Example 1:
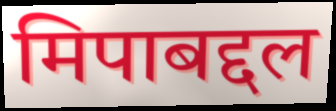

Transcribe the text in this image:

मिपाबद्दल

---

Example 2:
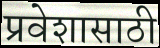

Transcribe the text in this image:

प्रवेशासाठी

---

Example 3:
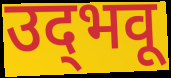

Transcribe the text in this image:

उद्‌भवू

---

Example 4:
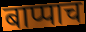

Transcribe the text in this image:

बाप्पाच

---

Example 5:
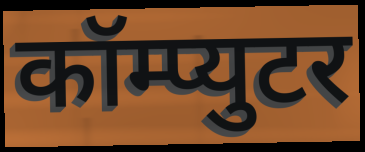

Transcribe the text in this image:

कॉम्प्युटर